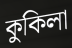
কুকিলা